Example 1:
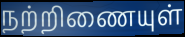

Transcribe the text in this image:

நற்றிணையுள்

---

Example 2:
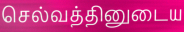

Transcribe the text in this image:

செல்வத்தினுடைய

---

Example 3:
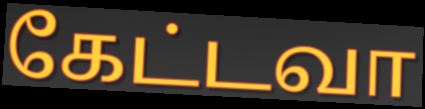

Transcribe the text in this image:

கேட்டவா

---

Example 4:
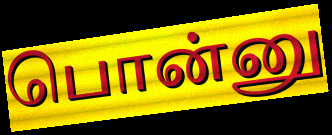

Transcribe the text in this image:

பொன்னு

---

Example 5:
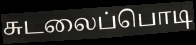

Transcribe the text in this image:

சுடலைப்பொடி